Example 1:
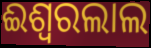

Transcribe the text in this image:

ଈଶ୍ଵରଲାଲ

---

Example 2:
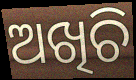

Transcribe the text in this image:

ଅଖିଚି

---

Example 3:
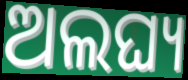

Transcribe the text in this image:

ଅଲଘ୍ୟ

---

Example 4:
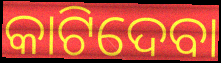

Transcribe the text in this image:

କାଟିଦେବା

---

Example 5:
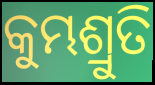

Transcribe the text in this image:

କୁମ୍ଭଶ୍ରୁତି